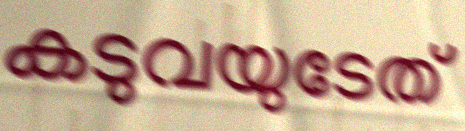
കടുവയുടേത്